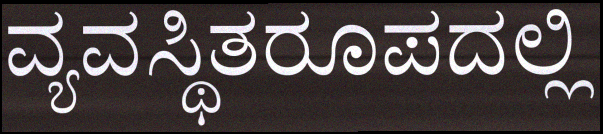
ವ್ಯವಸ್ಥಿತರೂಪದಲ್ಲಿ